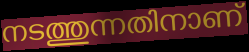
നടത്തുന്നതിനാണ്